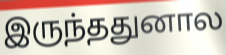
இருந்ததுனால